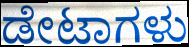
ಡೇಟಾಗಳು